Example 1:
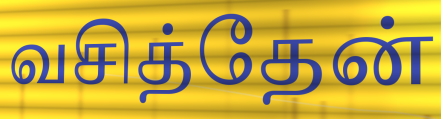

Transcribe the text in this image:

வசித்தேன்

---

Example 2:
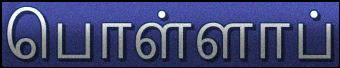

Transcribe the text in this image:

பொள்ளாப்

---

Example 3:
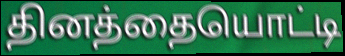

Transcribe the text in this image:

தினத்தையொட்டி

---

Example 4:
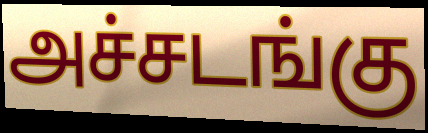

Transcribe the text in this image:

அச்சடங்கு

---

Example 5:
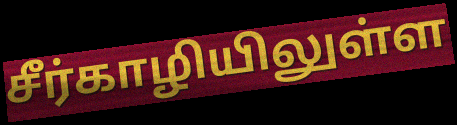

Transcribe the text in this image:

சீர்காழியிலுள்ள